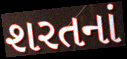
શરતનાં